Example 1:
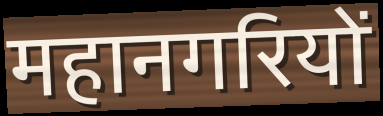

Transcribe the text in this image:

महानगरियों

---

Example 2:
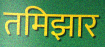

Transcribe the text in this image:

तमिझार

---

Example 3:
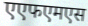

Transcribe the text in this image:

एएफएमएस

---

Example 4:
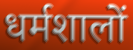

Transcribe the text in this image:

धर्मशालों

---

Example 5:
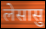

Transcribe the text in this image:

लेसासु